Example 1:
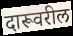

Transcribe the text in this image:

दारूवरील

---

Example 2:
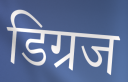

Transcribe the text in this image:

डिग्रज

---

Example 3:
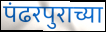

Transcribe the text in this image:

पंढरपुराच्या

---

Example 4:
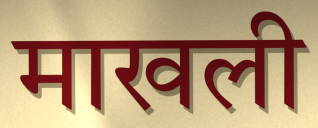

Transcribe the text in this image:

माखली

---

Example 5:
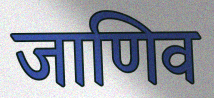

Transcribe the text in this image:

जाणिव